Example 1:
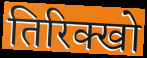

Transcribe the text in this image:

तिरिक्खो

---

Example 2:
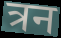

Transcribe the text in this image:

त्रन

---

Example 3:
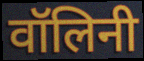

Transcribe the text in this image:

वॉलिनी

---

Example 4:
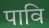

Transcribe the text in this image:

पावि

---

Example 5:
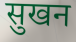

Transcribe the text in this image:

सुखन